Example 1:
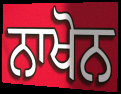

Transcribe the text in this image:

ਨਾਖੋਨ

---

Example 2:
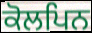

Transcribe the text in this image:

ਕੋਲਪਿਨ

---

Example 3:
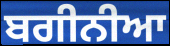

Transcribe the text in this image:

ਬਗੀਨੀਆ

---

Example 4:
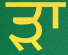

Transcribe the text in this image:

ੜਾ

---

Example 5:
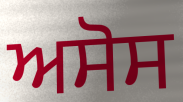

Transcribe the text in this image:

ਅਸੋਸ